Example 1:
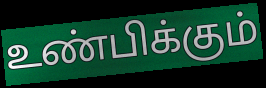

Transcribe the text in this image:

உண்பிக்கும்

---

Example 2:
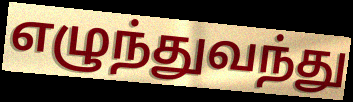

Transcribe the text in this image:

எழுந்துவந்து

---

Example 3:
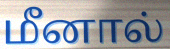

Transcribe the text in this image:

மீனால்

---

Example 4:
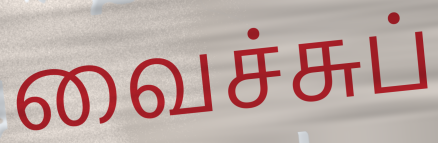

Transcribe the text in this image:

வைச்சுப்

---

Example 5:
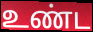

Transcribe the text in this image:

உண்ட